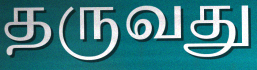
தருவது